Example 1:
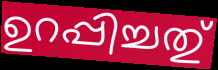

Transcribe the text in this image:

ഉറപ്പിച്ചതു്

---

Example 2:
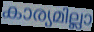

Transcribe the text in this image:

കാര്യമില്ലാ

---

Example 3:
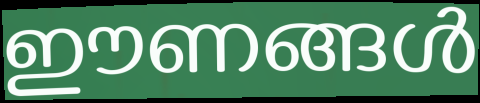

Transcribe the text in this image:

ഈണങ്ങൾ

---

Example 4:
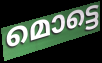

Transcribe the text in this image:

മൊട്ടെ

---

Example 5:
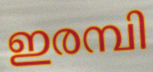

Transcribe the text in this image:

ഇരമ്പി